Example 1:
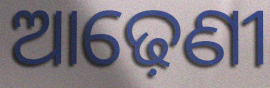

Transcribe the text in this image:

ଆଢ଼େଣୀ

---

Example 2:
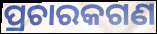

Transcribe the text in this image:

ପ୍ରଚାରକଗଣ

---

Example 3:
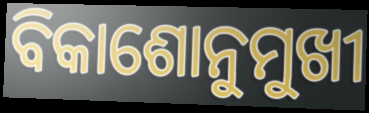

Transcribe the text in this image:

ବିକାଶୋନୁମୁଖୀ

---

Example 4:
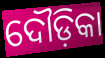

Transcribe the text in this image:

ଦୌଡ଼ିକା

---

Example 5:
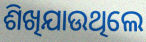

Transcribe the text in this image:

ଶିଖିଯାଉଥିଲେ